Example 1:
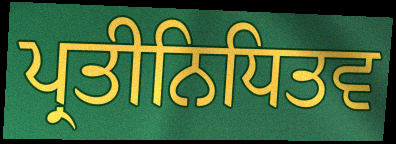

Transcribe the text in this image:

ਪ੍ਰਤੀਨਿਧਿਤਵ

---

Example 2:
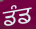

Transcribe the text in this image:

ਡੰਡ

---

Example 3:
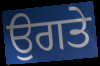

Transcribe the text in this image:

ਉਗਤੇ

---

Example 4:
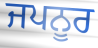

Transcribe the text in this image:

ਜਪਨੂਰ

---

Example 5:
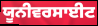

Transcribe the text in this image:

ਯੂਨੀਵਰਸਾਈਟ